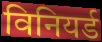
विनियर्ड